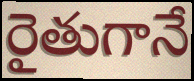
రైతుగానే